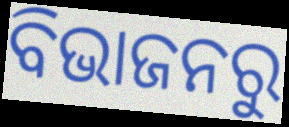
ବିଭାଜନରୁ